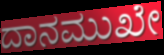
ದಾನಮುಖೇ